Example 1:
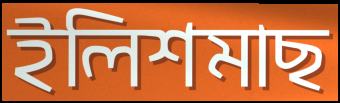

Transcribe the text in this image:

ইলিশমাছ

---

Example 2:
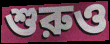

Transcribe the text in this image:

শুরুও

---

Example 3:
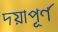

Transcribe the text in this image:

দয়াপূর্ণ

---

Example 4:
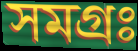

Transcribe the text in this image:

সমগ্রঃ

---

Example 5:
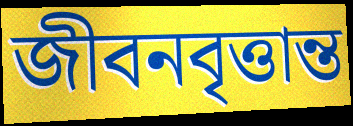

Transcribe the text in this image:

জীবনবৃত্তান্ত